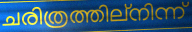
ചരിത്രത്തില്നിന്ന്